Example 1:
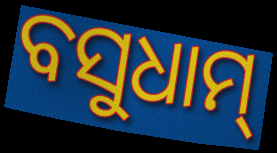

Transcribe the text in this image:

ବସୁଧାମ୍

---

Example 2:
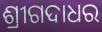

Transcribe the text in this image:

ଶ୍ରୀଗଦାଧର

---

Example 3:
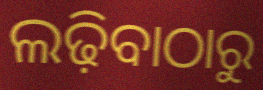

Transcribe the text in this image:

ଲଢ଼ିବାଠାରୁ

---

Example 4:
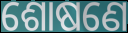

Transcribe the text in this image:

ଶୋଷଣେ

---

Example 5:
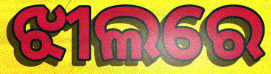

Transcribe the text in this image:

ଝୀଲରେ